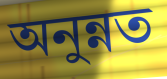
অনুন্নত